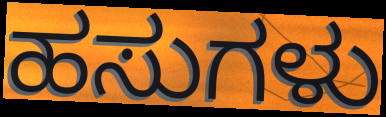
ಹಸುಗಳು